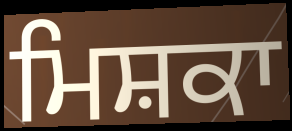
ਮਿਸ਼ਕਾ